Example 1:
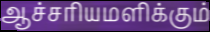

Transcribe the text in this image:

ஆச்சரியமளிக்கும்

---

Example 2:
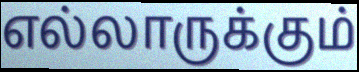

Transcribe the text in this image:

எல்லாருக்கும்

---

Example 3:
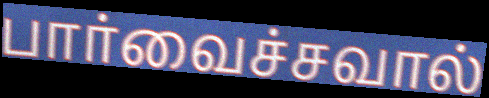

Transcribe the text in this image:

பார்வைச்சவால்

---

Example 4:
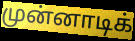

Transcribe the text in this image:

முன்னாடிக்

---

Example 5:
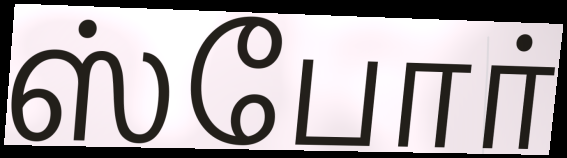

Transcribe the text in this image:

ஸ்போர்